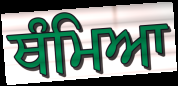
ਥੰਮਿਆ